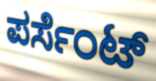
ಪರ್ಸೆಂಟ್